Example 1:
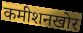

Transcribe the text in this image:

कमीशनखोर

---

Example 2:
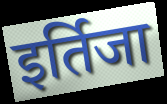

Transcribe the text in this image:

इर्तिजा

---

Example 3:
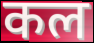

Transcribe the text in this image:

कल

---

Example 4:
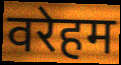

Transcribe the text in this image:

वरेहम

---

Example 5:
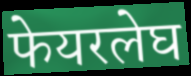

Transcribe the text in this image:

फेयरलेघ